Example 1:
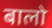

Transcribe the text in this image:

बालो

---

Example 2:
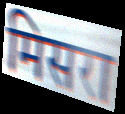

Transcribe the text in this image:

मिसरा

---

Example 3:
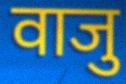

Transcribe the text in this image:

वाजु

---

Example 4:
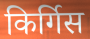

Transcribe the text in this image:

किर्गिस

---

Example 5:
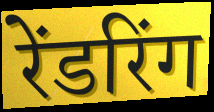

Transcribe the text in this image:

रेंडरिंग